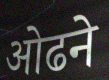
ओढने